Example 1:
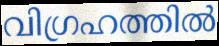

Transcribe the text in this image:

വിഗ്രഹത്തിൽ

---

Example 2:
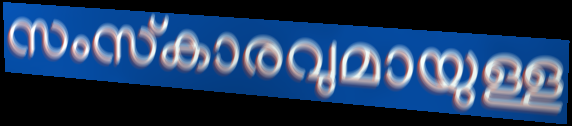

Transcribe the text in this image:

സംസ്‌കാരവുമായുള്ള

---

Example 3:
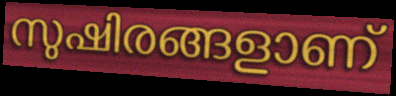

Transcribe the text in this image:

സുഷിരങ്ങളാണ്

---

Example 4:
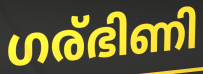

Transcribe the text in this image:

ഗര്ഭിണി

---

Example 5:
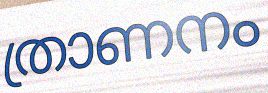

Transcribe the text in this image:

ത്രാണനം